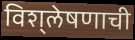
विश्लेषणाची